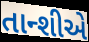
તાન્શીએ